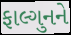
ફાલ્ગુનને